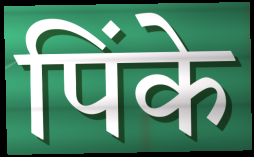
पिंके